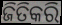
ଜିତିକରି